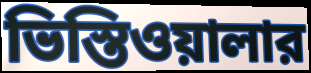
ভিস্তিওয়ালার